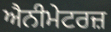
ਐਨੀਮੇਟਰਜ਼